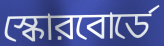
স্কোরবোর্ডে